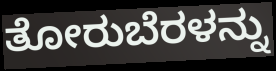
ತೋರುಬೆರಳನ್ನು